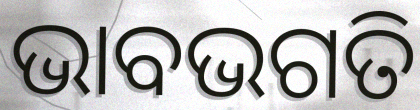
ଭାବଭଗତି